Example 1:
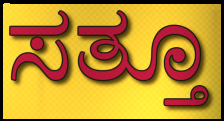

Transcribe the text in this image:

ಸತ್ತೂ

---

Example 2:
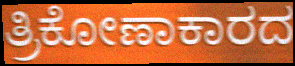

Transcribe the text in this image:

ತ್ರಿಕೋಣಾಕಾರದ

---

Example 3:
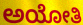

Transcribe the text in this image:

ಅಯೋತಿ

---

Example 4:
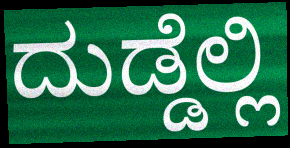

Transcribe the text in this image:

ದುಡ್ಡೆಲ್ಲಿ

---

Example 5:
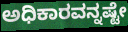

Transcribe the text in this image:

ಅಧಿಕಾರವನ್ನಷ್ಟೇ